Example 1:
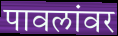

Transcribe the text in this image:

पावलांवर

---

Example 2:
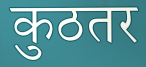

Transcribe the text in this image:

कुठतर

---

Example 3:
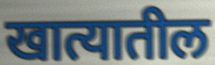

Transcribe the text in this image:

खात्यातील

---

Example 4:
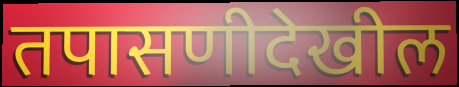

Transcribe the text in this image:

तपासणीदेखील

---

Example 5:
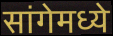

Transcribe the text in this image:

सांगेमध्ये